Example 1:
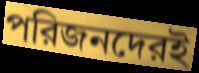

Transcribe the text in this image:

পরিজনদেরই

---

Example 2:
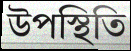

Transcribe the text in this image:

উপস্থিতি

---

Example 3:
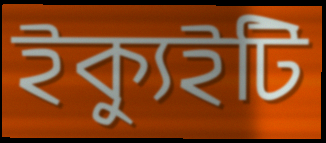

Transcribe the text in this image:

ইক্যুইটি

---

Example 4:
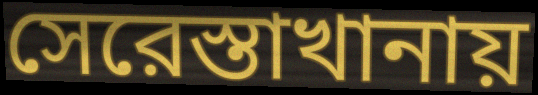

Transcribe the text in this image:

সেরেস্তাখানায়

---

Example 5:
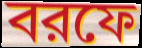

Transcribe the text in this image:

বরফে